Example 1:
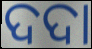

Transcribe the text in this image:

ଦଦା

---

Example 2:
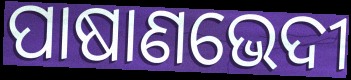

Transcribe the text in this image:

ପାଷାଣଭେଦୀ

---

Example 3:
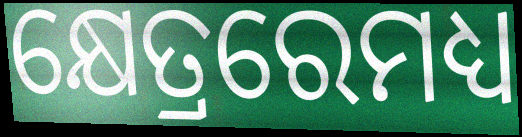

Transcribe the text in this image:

କ୍ଷେତ୍ରରେମଧ୍ୟ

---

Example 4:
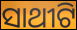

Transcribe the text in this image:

ସାଥୀଟି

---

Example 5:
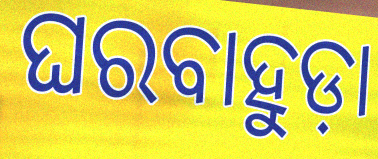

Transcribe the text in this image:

ଘରବାହୁଡ଼ା